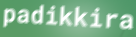
padikkira